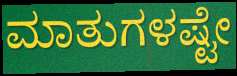
ಮಾತುಗಳಷ್ಟೇ